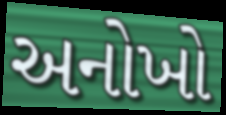
અનોખો